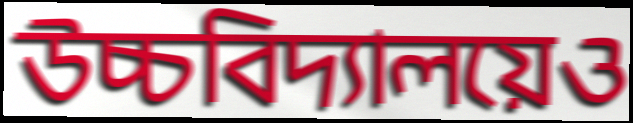
উচ্চবিদ্যালয়েও